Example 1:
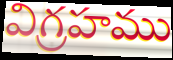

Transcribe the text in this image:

విగ్రహము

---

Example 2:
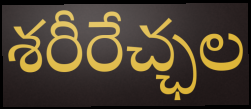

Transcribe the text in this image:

శరీరేచ్ఛల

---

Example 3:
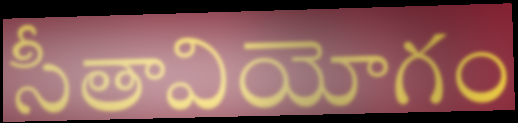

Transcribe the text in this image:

సీతావియోగం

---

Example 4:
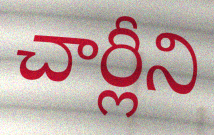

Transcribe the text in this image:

చార్లీని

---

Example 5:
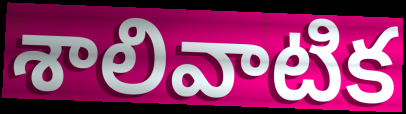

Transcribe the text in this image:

శాలివాటిక